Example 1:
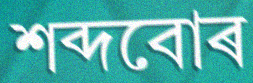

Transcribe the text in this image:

শব্দবোৰ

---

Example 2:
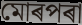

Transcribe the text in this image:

মোৰপৰা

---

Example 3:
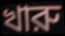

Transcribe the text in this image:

খাৰু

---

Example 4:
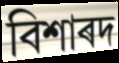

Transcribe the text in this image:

বিশাৰদ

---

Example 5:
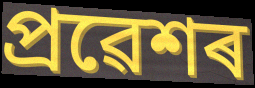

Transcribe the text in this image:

প্ৰৱেশৰ